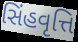
સિંહવૃત્તિ